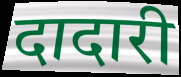
दादारी